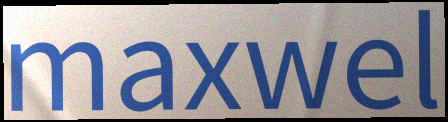
maxwel